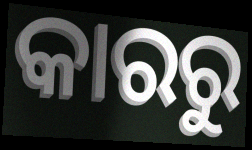
କାରରୁ